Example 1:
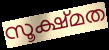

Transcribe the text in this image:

സൂക്ഷ്മത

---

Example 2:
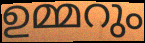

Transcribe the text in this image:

ഉമ്മറും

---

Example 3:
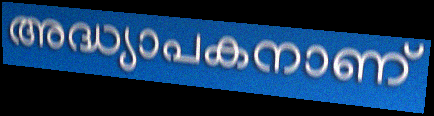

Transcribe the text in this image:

അദ്ധ്യാപകനാണ്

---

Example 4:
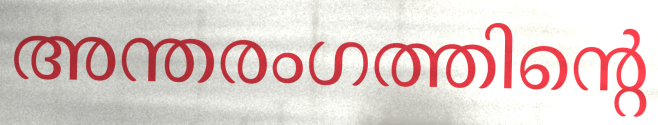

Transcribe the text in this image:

അന്തരംഗത്തിന്റെ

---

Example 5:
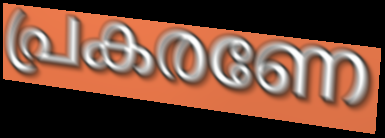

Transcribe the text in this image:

പ്രകരണേ